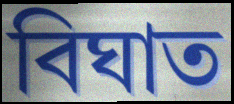
বিঘাত